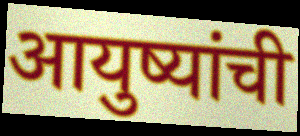
आयुष्यांची